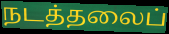
நடத்தலைப்